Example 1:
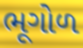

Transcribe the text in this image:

ભૂગોળ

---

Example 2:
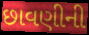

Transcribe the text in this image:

છાવણીની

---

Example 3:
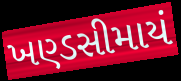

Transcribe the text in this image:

ખણ્ડસીમાયં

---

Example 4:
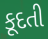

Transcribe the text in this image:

કૂદતી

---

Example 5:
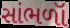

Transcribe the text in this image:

સાંભળૉ